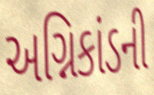
અગ્નિકાંડની